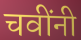
चवींनी